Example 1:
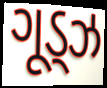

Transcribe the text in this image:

ગૂડ્ઝ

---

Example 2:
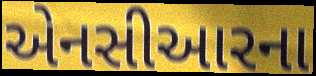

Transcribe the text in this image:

એનસીઆરના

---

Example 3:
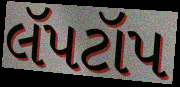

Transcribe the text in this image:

લૅપટૉપ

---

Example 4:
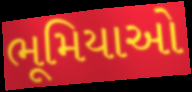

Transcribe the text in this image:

ભૂમિયાઓ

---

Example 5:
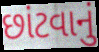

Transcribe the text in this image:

છાંટવાનું